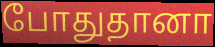
போதுதானா